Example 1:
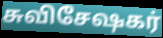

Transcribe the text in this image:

சுவிசேஷகர்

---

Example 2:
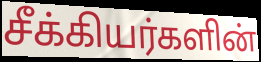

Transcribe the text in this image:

சீக்கியர்களின்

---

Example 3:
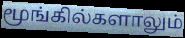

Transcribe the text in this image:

மூங்கில்களாலும்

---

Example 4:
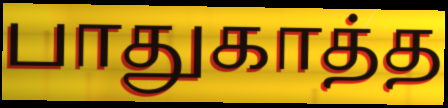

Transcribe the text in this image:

பாதுகாத்த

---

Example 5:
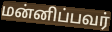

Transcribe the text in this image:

மன்னிப்பவர்